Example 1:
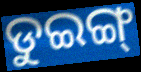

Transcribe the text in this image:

ଡୁଇଙ୍ଗ୍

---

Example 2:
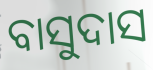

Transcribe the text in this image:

ବାସୁଦାସ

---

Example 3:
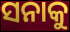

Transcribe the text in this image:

ସନାକୁ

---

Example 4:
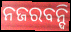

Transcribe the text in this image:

ନଜରବନ୍ଦି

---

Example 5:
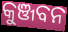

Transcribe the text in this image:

କୁଞ୍ଜବନ